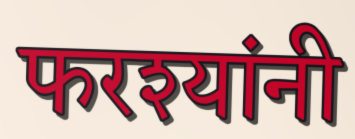
फरश्यांनी